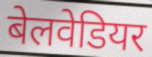
बेलवेडियर